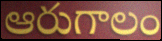
ఆరుగాలం